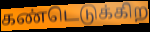
கண்டெடுக்கிற